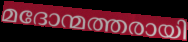
മദോന്മത്തരായി